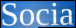
Socia